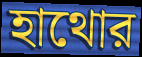
হাথোর